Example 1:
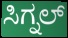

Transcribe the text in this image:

ಸಿಗ್ನಲ್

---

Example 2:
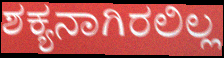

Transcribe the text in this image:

ಶಕ್ಯನಾಗಿರಲಿಲ್ಲ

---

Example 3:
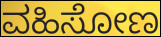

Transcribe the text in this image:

ವಹಿಸೋಣ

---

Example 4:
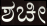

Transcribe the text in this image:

ಶಚೀ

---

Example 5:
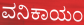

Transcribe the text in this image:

ವನಿಕಾಯಂ